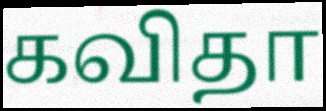
கவிதா